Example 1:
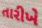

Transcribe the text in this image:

તારીખે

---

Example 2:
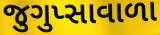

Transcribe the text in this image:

જુગુપ્સાવાળા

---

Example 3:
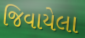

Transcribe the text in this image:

જિવાયેલા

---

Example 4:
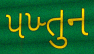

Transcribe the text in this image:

પખ્તુન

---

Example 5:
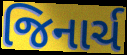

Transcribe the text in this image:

જિનાર્ચ